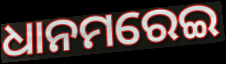
ଧାନମରେଇ